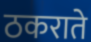
ठकराते